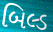
બિલ્ડ